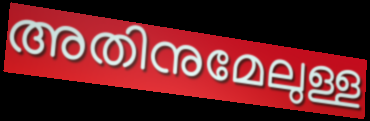
അതിനുമേലുള്ള